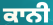
ਕਾਨੀ